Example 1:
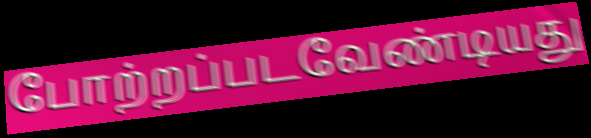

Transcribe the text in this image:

போற்றப்படவேண்டியது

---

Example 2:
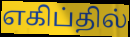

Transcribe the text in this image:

எகிப்தில்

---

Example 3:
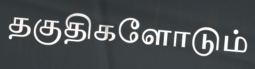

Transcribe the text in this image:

தகுதிகளோடும்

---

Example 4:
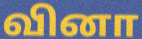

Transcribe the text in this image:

வினா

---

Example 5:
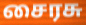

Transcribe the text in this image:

சைரசு